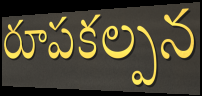
రూపకల్పన